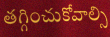
తగ్గించుకోవాల్సి